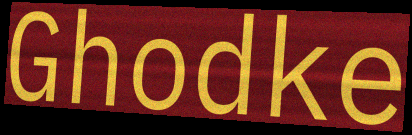
Ghodke